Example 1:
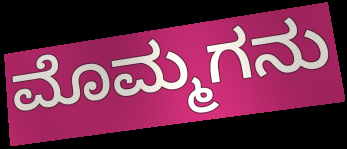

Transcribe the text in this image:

ಮೊಮ್ಮಗನು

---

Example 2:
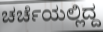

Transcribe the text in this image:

ಚರ್ಚೆಯಲ್ಲಿದ್ದ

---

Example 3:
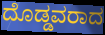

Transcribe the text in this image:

ದೊಡ್ಡವರಾದ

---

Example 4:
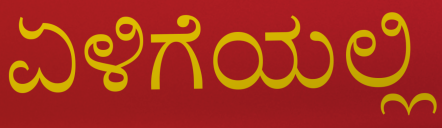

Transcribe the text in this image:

ಏಳಿಗೆಯಲ್ಲಿ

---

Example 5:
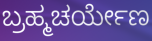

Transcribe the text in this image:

ಬ್ರಹ್ಮಚರ್ಯೇಣ